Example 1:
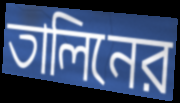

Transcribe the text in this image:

তালিনের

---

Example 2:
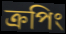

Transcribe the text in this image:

ক্রপিং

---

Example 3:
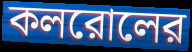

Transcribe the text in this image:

কলরোলের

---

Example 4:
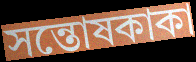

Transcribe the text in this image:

সন্তোষকাকা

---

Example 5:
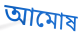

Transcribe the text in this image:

আমোষ